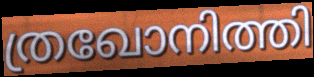
ത്രഖോനിത്തി